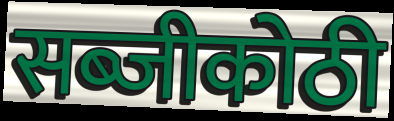
सब्जीकोठी